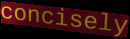
concisely